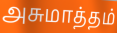
அசுமாத்தம்